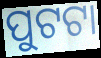
ପୁଟଟା